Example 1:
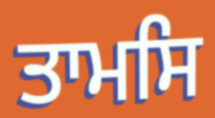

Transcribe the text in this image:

ਤਾਮਸਿ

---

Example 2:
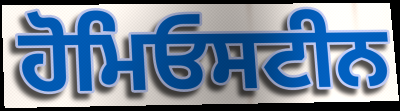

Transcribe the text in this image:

ਹੋਮਿਓਸਟੀਨ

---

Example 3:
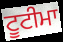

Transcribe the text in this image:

ਟੂਟੀਮਾ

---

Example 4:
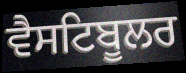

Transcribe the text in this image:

ਵੈਸਟਿਬੂਲਰ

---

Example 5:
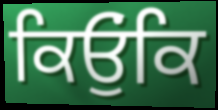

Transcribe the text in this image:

ਕਿਓੁਂਕਿ